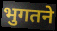
भुगतने